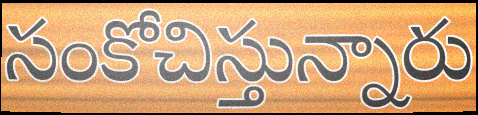
సంకోచిస్తున్నారు